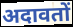
अदावतों